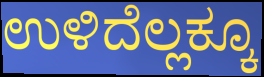
ಉಳಿದೆಲ್ಲಕ್ಕೂ